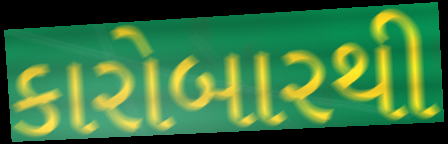
કારોબારથી